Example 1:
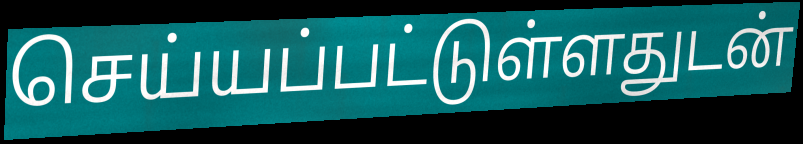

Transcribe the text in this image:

செய்யப்பட்டுள்ளதுடன்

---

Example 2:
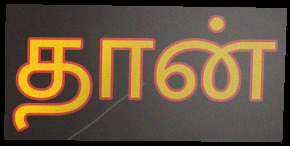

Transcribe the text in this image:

தான்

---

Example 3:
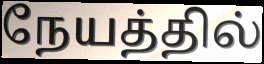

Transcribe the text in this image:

நேயத்தில்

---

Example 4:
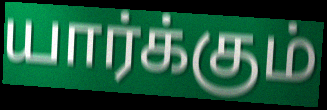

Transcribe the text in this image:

யார்க்கும்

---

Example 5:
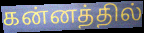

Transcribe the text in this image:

கன்னத்தில்